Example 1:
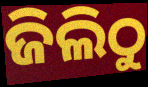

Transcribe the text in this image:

ଜିଲିଠୁ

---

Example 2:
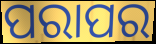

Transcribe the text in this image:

ପରାପର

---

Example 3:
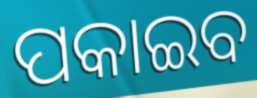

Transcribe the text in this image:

ପକାଇବ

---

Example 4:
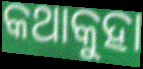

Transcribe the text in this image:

କଥାକୁହା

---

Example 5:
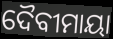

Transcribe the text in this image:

ଦୈବୀମାୟା